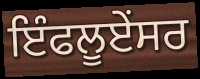
ਇੰਫਲੂਏਂਸਰ